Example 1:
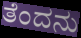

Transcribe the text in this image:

ತೆಂದನು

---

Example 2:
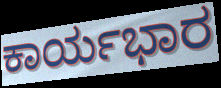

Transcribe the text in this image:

ಕಾರ್ಯಭಾರ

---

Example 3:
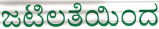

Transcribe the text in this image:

ಜಟಿಲತೆಯಿಂದ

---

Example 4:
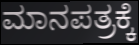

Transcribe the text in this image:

ಮಾನಪತ್ರಕ್ಕೆ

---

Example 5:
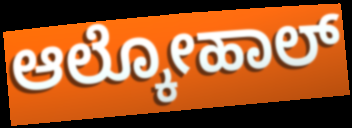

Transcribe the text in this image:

ಆಲ್ಕೋಹಾಲ್